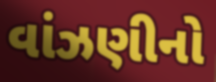
વાંઝણીનો